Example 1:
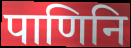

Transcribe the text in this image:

पाणिनि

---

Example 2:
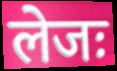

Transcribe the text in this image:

लेजः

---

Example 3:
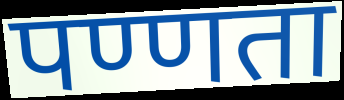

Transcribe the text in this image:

पण्णता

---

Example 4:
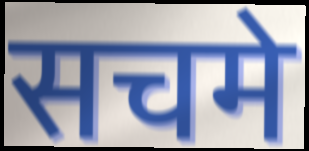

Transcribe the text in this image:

सचमे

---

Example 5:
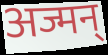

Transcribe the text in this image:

अज्मन्